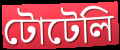
টোটেলি